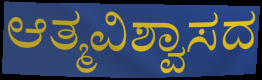
ಆತ್ಮವಿಶ್ವಾಸದ